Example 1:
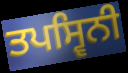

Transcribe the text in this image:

ਤਪਸ੍ਵਿਨੀ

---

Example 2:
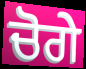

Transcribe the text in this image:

ਚੋਗੇ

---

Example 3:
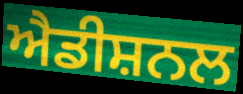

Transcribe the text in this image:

ਐਡੀਸ਼ਨਲ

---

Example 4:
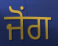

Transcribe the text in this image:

ਜੋਂਗ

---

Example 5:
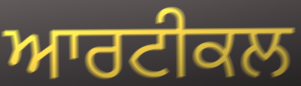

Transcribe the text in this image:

ਆਰਟੀਕਲ